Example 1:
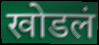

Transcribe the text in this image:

खोडलं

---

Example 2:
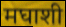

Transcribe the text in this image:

मघाशी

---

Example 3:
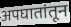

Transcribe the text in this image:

अपघातांतून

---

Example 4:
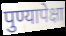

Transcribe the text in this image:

पुण्यापेक्षा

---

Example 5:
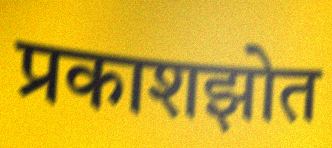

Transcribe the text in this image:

प्रकाशझोत